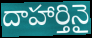
దాహార్తినై